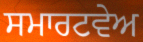
ਸਮਾਰਟਵੇਅ